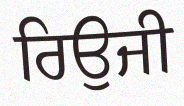
ਰਿਉਜੀ